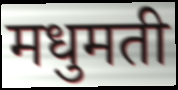
मधुमती